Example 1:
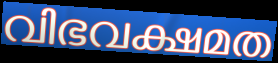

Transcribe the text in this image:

വിഭവക്ഷമത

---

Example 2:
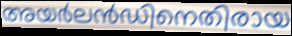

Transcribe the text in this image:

അയർലൻഡിനെതിരായ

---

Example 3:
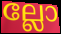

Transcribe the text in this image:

ല്ലോ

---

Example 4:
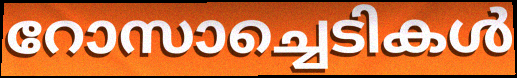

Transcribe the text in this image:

റോസാച്ചെടികൾ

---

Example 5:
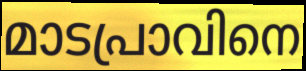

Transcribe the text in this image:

മാടപ്രാവിനെ